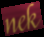
nek